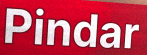
Pindar